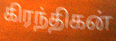
கிரந்திகன்